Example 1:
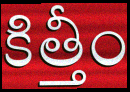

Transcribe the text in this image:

కిత్తీం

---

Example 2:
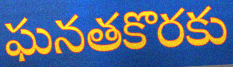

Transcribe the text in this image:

ఘనతకొరకు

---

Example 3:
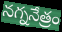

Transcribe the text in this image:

నగ్ననేత్రం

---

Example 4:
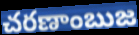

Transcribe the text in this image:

చరణాంబుజ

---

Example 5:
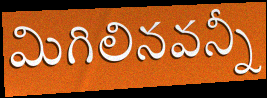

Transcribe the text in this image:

మిగిలినవన్నీ